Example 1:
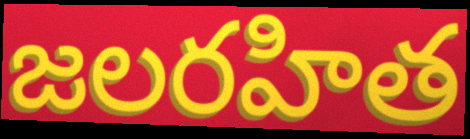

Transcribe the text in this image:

జలరహిత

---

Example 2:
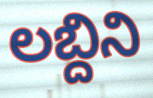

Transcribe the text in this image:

లబ్దిని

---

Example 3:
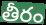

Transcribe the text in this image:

తీరం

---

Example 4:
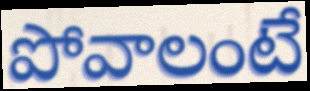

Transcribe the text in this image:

పోవాలంటే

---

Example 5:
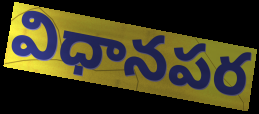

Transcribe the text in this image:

విధానపర